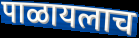
पाळायलाच